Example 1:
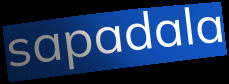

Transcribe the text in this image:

sapadala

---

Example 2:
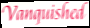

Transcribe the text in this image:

Vanquished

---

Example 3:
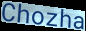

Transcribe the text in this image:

Chozha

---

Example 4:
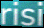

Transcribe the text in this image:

risi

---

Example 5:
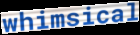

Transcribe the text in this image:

whimsical